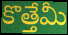
కొత్తేమీ